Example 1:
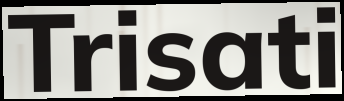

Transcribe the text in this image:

Trisati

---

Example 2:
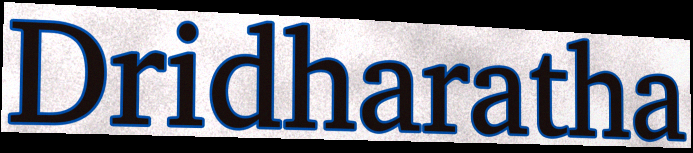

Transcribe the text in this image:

Dridharatha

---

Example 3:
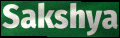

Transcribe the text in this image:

Sakshya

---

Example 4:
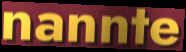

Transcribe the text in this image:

nannte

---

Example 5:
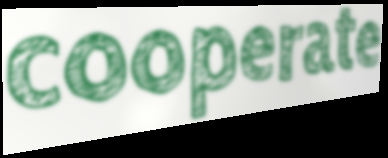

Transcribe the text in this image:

cooperate